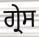
ਗ੍ਰੇਸ